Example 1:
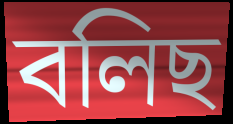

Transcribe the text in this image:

বলিছ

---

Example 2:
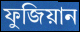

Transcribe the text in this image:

ফুজিয়ান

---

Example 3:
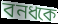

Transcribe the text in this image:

বনধকে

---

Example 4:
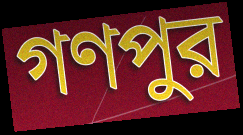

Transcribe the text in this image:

গণপুর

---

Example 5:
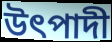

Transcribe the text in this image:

উৎপাদী